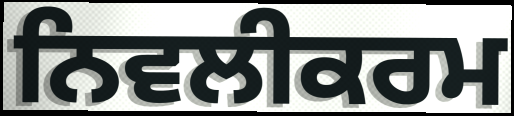
ਨਿਵਲੀਕਰਮ